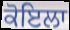
ਕੋਇਲਾ